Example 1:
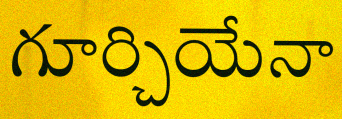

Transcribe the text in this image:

గూర్చియేనా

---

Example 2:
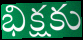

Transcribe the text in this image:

భిక్షకు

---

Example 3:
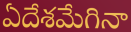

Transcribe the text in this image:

ఏదేశమేగినా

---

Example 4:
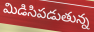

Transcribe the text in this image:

మిడిసిపడుతున్న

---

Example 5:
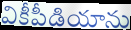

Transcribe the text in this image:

వికీపీడియాను